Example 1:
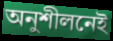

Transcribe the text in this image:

অনুশীলনেই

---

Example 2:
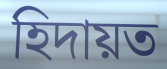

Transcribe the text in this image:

হিদায়ত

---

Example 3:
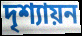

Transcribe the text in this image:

দৃশ্যায়ন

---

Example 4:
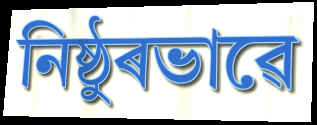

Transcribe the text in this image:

নিষ্ঠুৰভাৱে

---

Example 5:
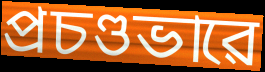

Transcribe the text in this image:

প্ৰচণ্ডভাৱে